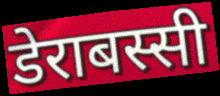
डेराबस्सी